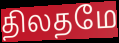
திலதமே